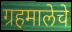
ग्रहमालेचे